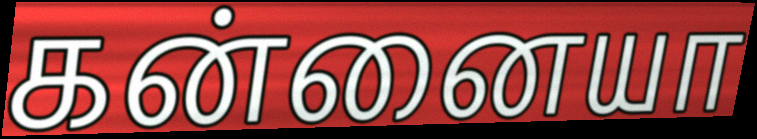
கன்னையா